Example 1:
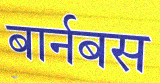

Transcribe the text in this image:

बार्नबस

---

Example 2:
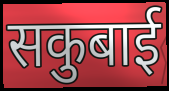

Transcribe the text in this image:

सकुबाई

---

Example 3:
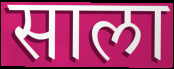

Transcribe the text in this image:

साला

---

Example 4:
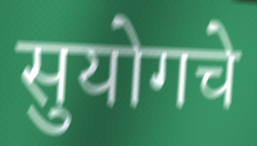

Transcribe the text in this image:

सुयोगचे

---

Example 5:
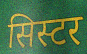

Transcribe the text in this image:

सिस्टर